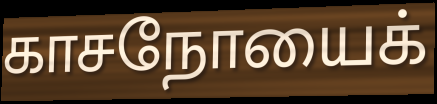
காசநோயைக்